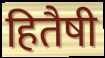
हितैषी